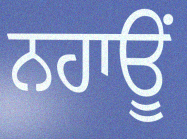
ਨਹਾਊਂ